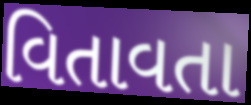
વિતાવતા